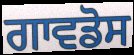
ਗਾਵਡੋਸ